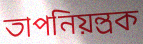
তাপনিয়ন্ত্রক